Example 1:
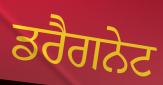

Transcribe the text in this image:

ਡਰੈਗਨੇਟ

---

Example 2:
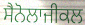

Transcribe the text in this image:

ਸੈਨੋਲਾਜੀਕਲ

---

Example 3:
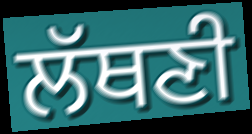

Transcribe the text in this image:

ਲੱਥਣੀ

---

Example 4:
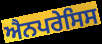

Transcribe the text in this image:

ਐਨਪਰੇਸਿਸ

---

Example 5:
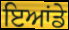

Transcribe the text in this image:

ਇਆਂਡੇ